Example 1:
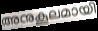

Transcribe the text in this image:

അനുകൂലമായി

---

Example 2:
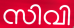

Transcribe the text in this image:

സിവി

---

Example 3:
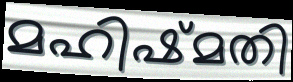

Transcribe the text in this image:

മഹിഷ്മതി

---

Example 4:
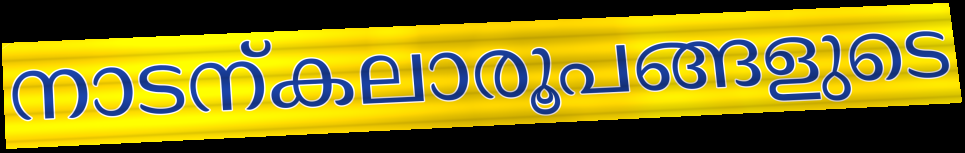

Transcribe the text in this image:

നാടന്കലാരൂപങ്ങളുടെ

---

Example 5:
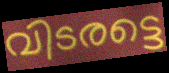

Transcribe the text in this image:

വിടരട്ടെ